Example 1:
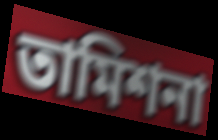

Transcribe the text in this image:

তামিশনা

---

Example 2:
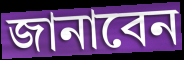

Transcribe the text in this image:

জানাবেন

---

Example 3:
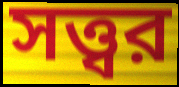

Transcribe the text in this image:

সত্ত্বর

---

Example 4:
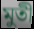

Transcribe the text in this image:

মুতী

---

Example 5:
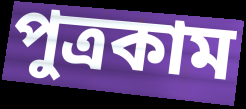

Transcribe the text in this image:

পুত্রকাম